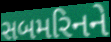
સબમરિનને